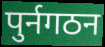
पुर्नगठन